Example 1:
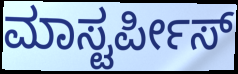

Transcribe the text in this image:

ಮಾಸ್ಟರ್ಪೀಸ್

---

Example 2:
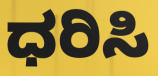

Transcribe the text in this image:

ಧರಿಸಿ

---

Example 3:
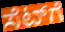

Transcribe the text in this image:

ಸೆಟ್‌ಗೆ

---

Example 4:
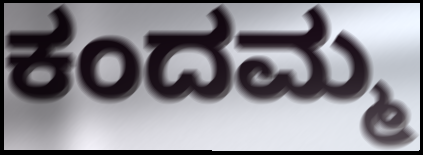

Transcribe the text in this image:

ಕಂದಮ್ಮ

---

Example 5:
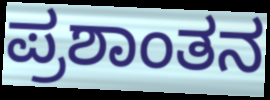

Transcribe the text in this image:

ಪ್ರಶಾಂತನ